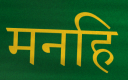
मनहि